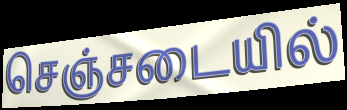
செஞ்சடையில்